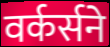
वर्कर्सने